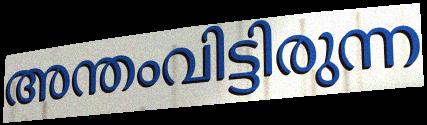
അന്തംവിട്ടിരുന്ന